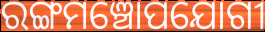
ରଙ୍ଗମଞ୍ଚୋପଯୋଗୀ